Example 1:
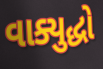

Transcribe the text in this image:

વાક્યુદ્ધો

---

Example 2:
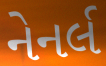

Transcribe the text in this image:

નેનર્લ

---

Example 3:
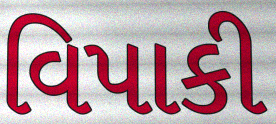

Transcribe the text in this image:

વિપાકી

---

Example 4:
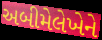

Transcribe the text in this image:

અબીમેલેખેને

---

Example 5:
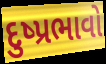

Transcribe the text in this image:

દુષ્પ્રભાવો